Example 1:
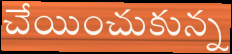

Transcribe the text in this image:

చేయించుకున్న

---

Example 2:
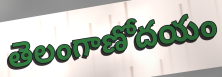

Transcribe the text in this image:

తెలంగాణోదయం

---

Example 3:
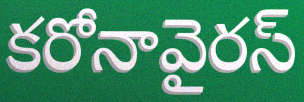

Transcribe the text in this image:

కరోనావైరస్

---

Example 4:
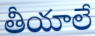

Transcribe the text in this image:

తీయాలే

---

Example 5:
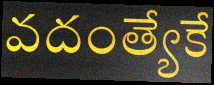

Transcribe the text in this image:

వదంత్యేకే